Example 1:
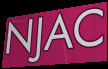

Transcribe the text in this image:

NJAC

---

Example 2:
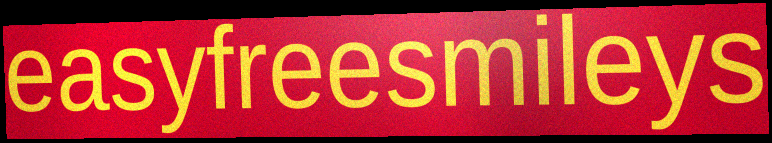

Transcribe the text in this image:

easyfreesmileys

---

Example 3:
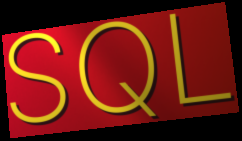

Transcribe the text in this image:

SQL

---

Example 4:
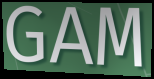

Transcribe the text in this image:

GAM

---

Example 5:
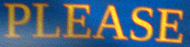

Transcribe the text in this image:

PLEASE